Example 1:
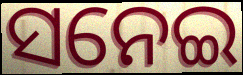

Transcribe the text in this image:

ସନେଇ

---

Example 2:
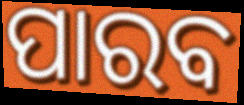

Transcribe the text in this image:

ପାରବ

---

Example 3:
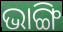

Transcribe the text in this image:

ଭାଙ୍ଗି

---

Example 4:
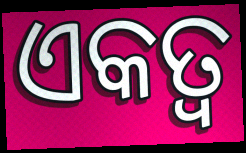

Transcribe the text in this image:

ଏକତ୍ୱ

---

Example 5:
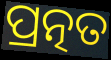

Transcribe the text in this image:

ପ୍ରତ୍ନତ